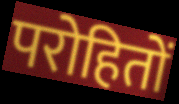
परोहितों